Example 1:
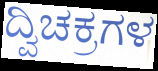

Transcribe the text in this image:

ದ್ವಿಚಕ್ರಗಳ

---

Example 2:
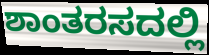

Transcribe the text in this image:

ಶಾಂತರಸದಲ್ಲಿ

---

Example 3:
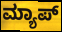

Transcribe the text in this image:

ಮ್ಯಾಪ್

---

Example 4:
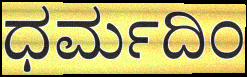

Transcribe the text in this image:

ಧರ್ಮದಿಂ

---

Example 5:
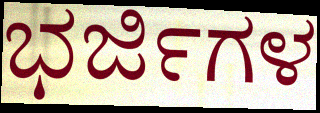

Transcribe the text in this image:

ಭರ್ಜಿಗಳ